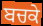
ਬਚਕੇ